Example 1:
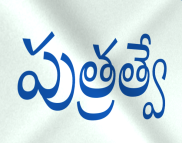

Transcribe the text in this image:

పుత్రత్వే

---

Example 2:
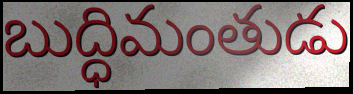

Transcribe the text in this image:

బుద్ధిమంతుడు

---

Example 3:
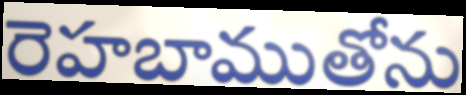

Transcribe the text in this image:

రెహబాముతోను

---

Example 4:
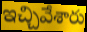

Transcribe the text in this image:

ఇచ్చివేశారు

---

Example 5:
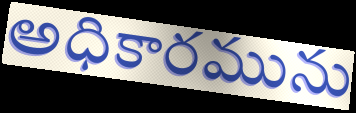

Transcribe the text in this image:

అధికారమును